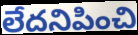
లేదనిపించి